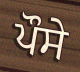
ਪੌਸੇ